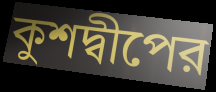
কুশদ্বীপের